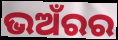
ଭଅଁରର